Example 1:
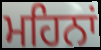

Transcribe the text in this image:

ਮਹਿਨਾਂ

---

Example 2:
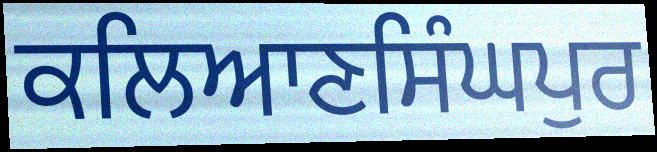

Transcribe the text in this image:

ਕਲਿਆਣਸਿੰਘਪੁਰ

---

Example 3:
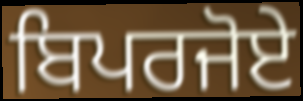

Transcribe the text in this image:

ਬਿਪਰਜੋਏ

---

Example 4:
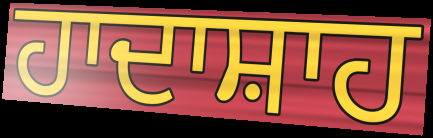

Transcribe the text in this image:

ਹਾਦਾਸ਼ਾਹ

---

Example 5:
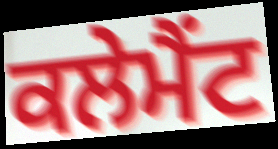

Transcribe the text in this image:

ਕਲੇਮੈਂਟ